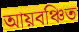
আয়বঞ্চিত